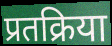
प्रतक्रिया